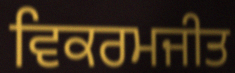
ਵਿਕਰਮਜੀਤ